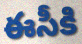
ఈసీకి